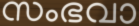
സംഭവാ